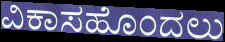
ವಿಕಾಸಹೊಂದಲು